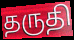
தருதி